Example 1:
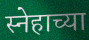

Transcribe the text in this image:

स्नेहाच्या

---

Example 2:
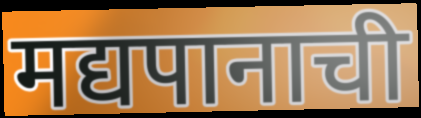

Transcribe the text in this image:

मद्यपानाची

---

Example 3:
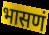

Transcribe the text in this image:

भासणं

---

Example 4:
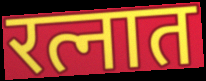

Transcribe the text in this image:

रत्नात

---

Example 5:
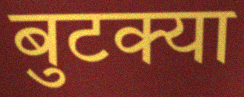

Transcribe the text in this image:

बुटक्या